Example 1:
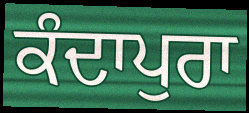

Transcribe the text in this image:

ਕੰਦਾਪੁਰਾ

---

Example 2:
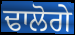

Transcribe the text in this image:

ਢਾਲੋਗੇ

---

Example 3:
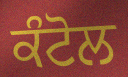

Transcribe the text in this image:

ਕੰਟੋਲ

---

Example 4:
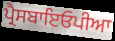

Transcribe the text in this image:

ਪ੍ਰੈਸਬਾਇਓਪੀਆ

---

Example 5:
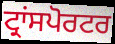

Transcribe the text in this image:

ਟ੍ਰਾਂਸਪੋਰਟਰ